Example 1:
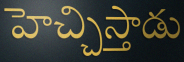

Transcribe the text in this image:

హెచ్చిస్తాడు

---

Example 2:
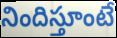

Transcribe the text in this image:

నిందిస్తూంటే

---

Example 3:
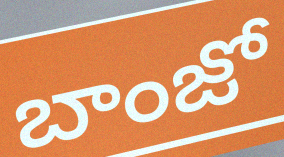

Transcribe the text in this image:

బాంజో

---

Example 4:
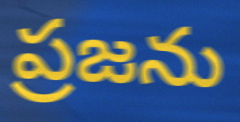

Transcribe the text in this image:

ప్రజను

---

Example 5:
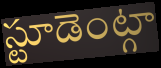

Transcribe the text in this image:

స్టూడెంట్గా